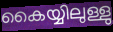
കൈയ്യിലുള്ളു